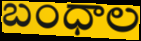
బంధాల